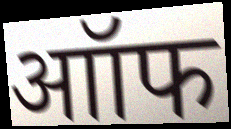
आॉफ